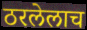
ठरलेलाच